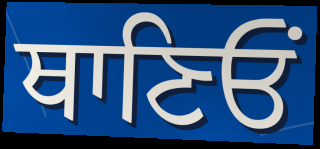
ਥਾਣਿਓਂ